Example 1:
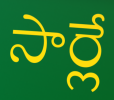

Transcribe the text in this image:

సార్లే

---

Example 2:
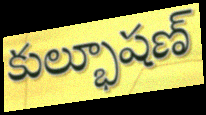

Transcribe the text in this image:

కుల్భూషణ్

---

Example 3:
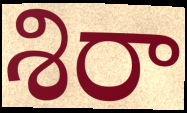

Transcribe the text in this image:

శిరా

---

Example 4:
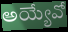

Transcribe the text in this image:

అయ్యేవో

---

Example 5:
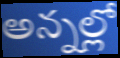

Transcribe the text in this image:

అన్నల్లో